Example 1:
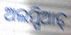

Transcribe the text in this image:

ଅଲମ୍ପିଆଡ୍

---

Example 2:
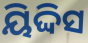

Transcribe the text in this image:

ୟିଦ୍ଦିସ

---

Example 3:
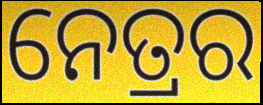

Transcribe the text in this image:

ନେତ୍ରର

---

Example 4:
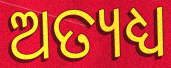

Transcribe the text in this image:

ଅତ୍ୟଧ୍ୟ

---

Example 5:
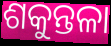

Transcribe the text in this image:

ଶକୁନ୍ତଳା